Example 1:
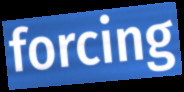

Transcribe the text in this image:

forcing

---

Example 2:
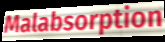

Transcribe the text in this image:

Malabsorption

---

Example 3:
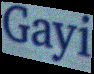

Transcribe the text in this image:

Gayi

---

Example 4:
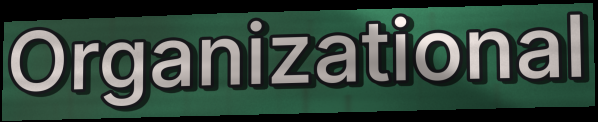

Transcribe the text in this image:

Organizational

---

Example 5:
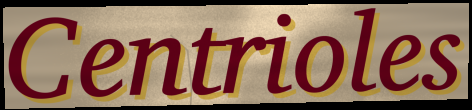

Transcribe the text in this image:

Centrioles